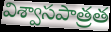
విశ్వాసపాత్రత